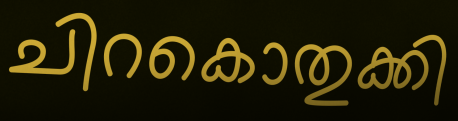
ചിറകൊതുക്കി